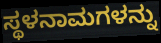
ಸ್ಥಳನಾಮಗಳನ್ನು